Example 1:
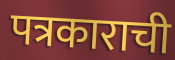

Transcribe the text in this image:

पत्रकाराची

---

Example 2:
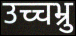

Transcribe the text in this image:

उच्चभ्रु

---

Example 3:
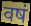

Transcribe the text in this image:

वषं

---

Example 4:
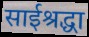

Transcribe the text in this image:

साईश्रद्धा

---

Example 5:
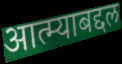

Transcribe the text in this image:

आत्म्याबद्दल